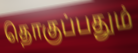
தொகுப்பதும்